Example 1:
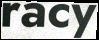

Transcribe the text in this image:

racy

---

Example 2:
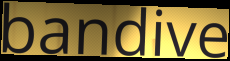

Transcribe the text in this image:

bandive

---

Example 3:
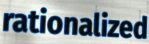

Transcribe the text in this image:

rationalized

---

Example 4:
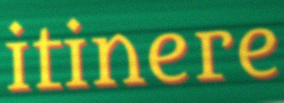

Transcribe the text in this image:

itinere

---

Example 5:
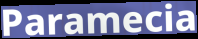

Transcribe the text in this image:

Paramecia